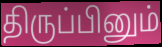
திருப்பினும்